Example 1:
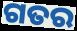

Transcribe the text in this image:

ଗତର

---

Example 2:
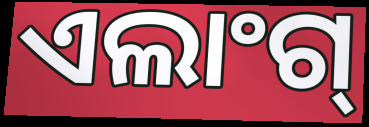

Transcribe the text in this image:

ଏଲାଂଗ୍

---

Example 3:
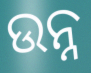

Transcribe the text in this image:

ଉନ୍ନ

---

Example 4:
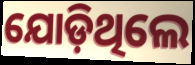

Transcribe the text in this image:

ଯୋଡ଼ିଥିଲେ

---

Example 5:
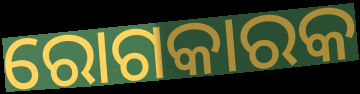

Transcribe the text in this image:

ରୋଗକାରକ